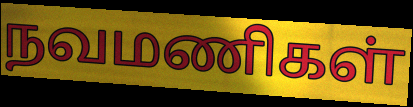
நவமணிகள்